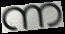
ന്ന